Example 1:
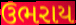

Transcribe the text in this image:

ઉભરાય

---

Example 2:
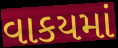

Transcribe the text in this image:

વાકયમાં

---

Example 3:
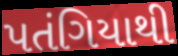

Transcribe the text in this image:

પતંગિયાથી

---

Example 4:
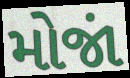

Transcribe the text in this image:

મોજાં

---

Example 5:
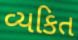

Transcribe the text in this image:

વ્યકિત